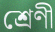
শ্ৰেণী